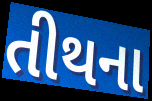
તીથના